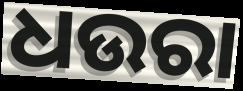
ଧଉରା